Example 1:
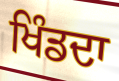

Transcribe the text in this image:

ਖਿੰਡਦਾ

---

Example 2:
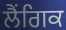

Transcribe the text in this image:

ਲੈਂਗਿਕ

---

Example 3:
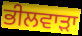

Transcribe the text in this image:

ਭੀਲਵਾੜਾ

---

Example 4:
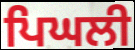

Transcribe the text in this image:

ਪਿਘਲੀ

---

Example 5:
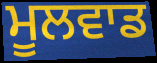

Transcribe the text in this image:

ਮੂਲਵਾਡ